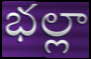
భల్లా